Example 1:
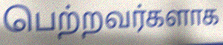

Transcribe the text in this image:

பெற்றவர்களாக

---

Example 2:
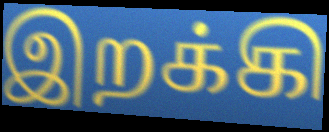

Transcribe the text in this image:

இறக்கி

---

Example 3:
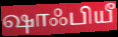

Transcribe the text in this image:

ஷாஃபியீ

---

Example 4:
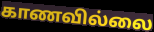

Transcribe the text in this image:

காணவில்லை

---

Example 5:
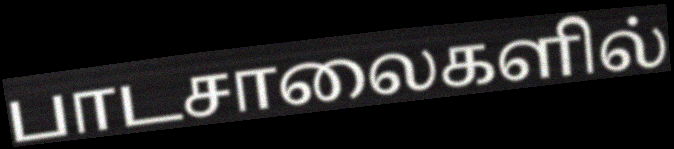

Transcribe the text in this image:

பாடசாலைகளில்